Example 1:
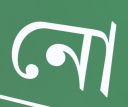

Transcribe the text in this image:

নো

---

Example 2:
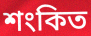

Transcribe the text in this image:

শংকিত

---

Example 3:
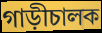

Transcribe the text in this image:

গাড়ীচালক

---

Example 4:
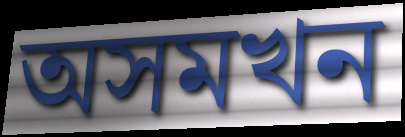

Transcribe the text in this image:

অসমখন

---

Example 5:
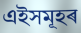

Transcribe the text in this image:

এইসমূহৰ